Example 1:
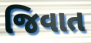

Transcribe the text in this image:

જિવાત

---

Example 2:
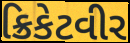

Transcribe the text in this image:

ક્રિકેટવીર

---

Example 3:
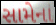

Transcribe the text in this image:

સામેના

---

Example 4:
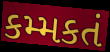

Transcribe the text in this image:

કમ્મકતં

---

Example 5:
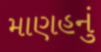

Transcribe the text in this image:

માણહનું